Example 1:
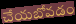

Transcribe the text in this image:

చేయబోవడం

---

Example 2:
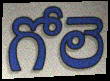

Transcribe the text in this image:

గోలె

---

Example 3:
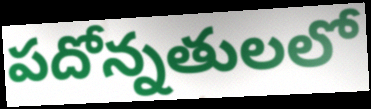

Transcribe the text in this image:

పదోన్నతులలో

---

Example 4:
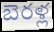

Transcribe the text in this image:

బెరళ్ల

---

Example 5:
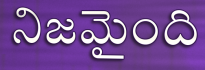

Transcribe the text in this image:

నిజమైంది